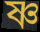
ষ্ণ